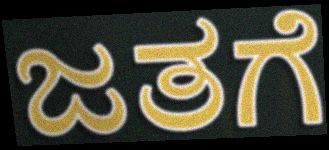
ಜತಗೆ